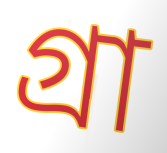
গ্রা